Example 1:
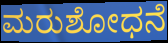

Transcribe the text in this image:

ಮರುಶೋಧನೆ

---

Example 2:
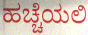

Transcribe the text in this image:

ಹಚ್ಚೆಯಲಿ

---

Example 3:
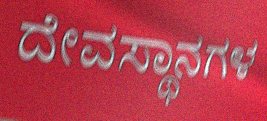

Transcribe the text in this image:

ದೇವಸ್ಥಾನಗಳ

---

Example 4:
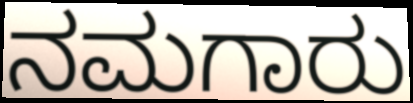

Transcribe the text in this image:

ನಮಗಾರು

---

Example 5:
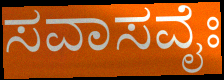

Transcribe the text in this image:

ಸವಾಸವೈಃ